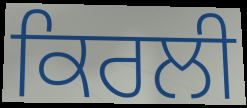
ਕਿਰਲੀ